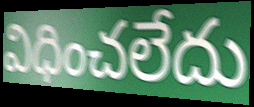
విధించలేదు